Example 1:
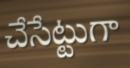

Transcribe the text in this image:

చేసేట్టుగా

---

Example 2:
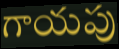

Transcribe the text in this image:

గాయపు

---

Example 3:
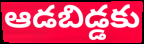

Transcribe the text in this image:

ఆడబిడ్డకు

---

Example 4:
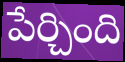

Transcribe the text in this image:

పేర్చింది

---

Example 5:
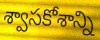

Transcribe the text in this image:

శ్వాసకోశాన్ని